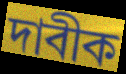
দাবীক